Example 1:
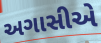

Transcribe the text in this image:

અગાસીએ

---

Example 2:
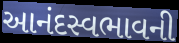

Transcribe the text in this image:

આનંદસ્વભાવની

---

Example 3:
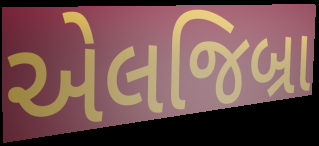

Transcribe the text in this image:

એલજિબ્રા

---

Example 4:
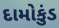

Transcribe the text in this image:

દામોકુંડ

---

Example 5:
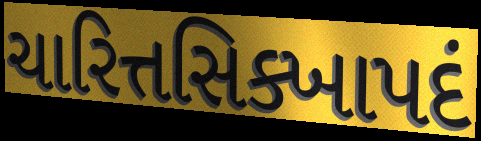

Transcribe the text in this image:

ચારિત્તસિક્ખાપદં